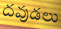
దవుడలు